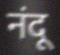
नंदू